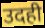
उदही